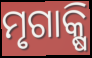
ମୃଗାକ୍ଷି